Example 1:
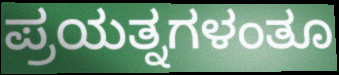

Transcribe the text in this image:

ಪ್ರಯತ್ನಗಳಂತೂ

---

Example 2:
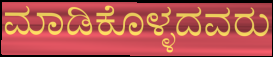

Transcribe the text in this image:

ಮಾಡಿಕೊಳ್ಳದವರು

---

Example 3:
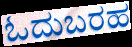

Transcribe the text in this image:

ಓದುಬರಹ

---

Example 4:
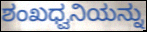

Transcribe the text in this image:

ಶಂಖಧ್ವನಿಯನ್ನು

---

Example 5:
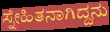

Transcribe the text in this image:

ಸ್ನೇಹಿತನಾಗಿದ್ದನು